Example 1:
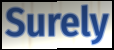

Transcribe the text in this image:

Surely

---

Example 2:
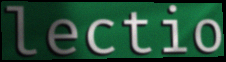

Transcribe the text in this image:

lectio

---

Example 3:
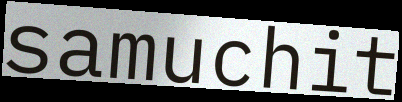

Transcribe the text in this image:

samuchit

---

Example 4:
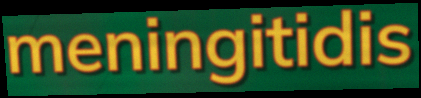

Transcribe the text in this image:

meningitidis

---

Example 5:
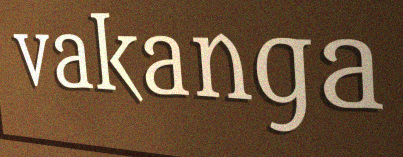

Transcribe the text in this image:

vakanga